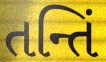
તન્તિં